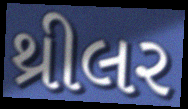
થ્રીલર